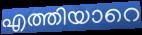
എത്തിയാറെ